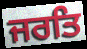
ਜਰਤਿ